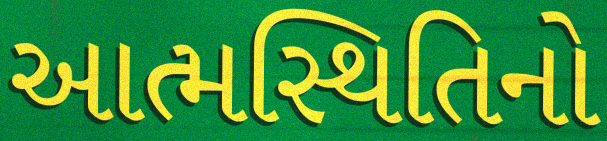
આત્મસ્થિતિનો